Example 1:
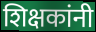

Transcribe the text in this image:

शिक्षकांनी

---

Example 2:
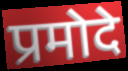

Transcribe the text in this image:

प्रमोदे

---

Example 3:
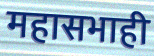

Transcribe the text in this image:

महासभाही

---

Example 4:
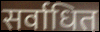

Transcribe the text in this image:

सर्वाधित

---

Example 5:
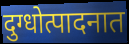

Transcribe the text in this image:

दुग्धोत्पादनात